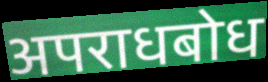
अपराधबोध